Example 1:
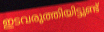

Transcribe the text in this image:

ഇടവരുത്തിയിട്ടുണ്ട്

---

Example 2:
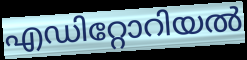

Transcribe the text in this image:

എഡിറ്റോറിയൽ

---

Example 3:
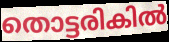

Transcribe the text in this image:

തൊട്ടരികിൽ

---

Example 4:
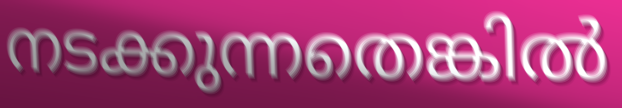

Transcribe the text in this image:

നടക്കുന്നതെങ്കിൽ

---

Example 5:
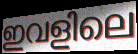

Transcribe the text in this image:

ഇവളിലെ